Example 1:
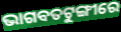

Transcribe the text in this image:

ଭାଗବତଟୁଙ୍ଗୀରେ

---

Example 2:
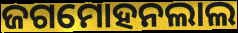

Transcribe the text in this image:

ଜଗମୋହନଲାଲ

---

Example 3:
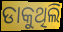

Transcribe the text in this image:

ଡାକୁଥିଲି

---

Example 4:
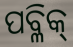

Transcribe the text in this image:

ପବ୍ଳିକ୍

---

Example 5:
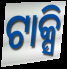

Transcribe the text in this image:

ଟାକ୍ସି